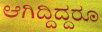
ಆಗಿದ್ದಿದ್ದರೂ